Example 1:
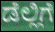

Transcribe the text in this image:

ಡೆಲ್ಲಿಗೆ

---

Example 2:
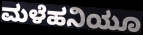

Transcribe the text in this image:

ಮಳೆಹನಿಯೂ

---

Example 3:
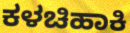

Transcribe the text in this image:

ಕಳಚಿಹಾಕಿ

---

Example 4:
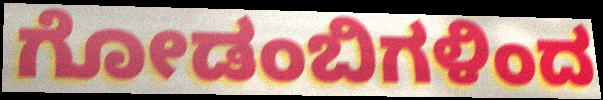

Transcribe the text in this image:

ಗೋಡಂಬಿಗಳಿಂದ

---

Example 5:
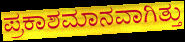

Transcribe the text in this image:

ಪ್ರಕಾಶಮಾನವಾಗಿತ್ತು